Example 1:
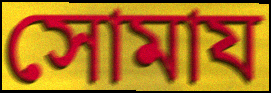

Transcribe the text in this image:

সোমায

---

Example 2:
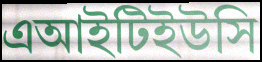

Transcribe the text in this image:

এআইটিইউসি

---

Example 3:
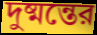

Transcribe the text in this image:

দুষ্মন্তের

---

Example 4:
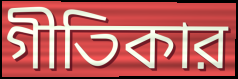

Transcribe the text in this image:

গীতিকার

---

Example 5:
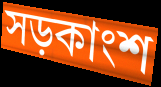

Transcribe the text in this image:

সড়কাংশ